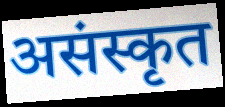
असंस्कृत